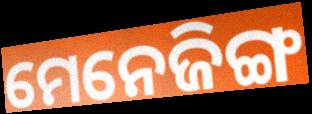
ମେନେଜିଙ୍ଗ